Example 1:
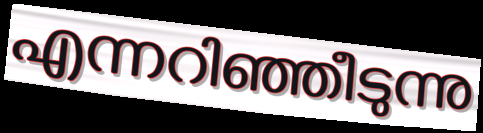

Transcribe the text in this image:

എന്നറിഞ്ഞീടുന്നു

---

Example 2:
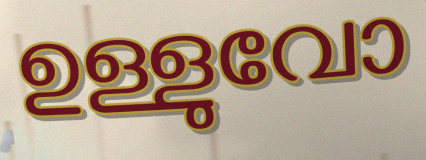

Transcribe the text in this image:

ഉള്ളുവോ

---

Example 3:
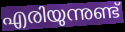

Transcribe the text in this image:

എരിയുന്നുണ്ട്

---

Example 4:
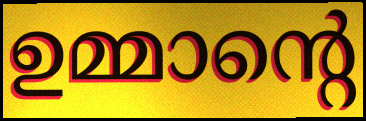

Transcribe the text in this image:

ഉമ്മാന്റെ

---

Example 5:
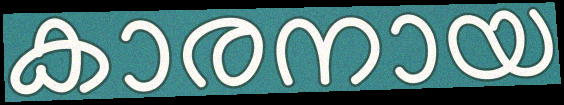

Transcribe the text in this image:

കാരനായ